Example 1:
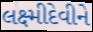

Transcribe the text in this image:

લક્ષ્મીદેવીને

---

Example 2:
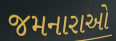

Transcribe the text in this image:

જમનારાઓ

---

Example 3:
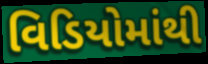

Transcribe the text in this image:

વિડિયોમાંથી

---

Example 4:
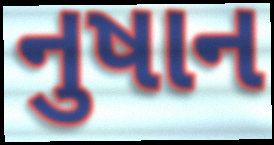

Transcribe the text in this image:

નુષાન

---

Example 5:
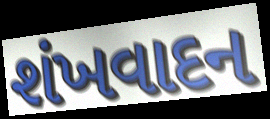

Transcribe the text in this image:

શંખવાદન